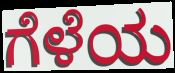
ಗೆಳೆಯ